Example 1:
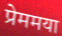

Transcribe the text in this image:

प्रेममया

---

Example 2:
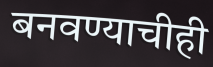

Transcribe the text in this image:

बनवण्याचीही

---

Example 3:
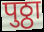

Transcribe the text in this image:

पुठ्ठा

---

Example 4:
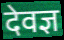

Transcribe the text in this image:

देवज्ञ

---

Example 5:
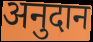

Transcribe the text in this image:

अनुदान